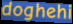
doghehi